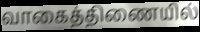
வாகைத்திணையில்